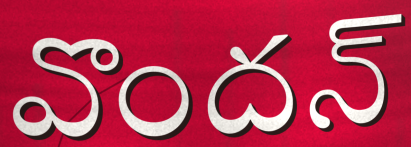
వొందన్